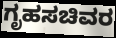
ಗೃಹಸಚಿವರ